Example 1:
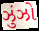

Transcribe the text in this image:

ઝુંઝો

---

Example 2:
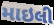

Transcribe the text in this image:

માઇલી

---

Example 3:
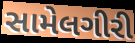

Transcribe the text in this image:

સામેલગીરી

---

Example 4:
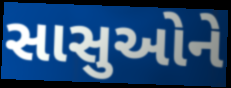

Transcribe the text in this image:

સાસુઓને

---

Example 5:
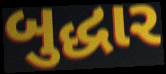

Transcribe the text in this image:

બુદ્ધાર